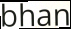
bhan